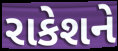
રાકેશને